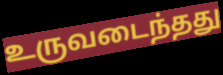
உருவடைந்தது